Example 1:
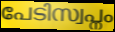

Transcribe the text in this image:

പേടിസ്വപ്നം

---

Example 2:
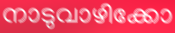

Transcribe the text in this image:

നാടുവാഴിക്കോ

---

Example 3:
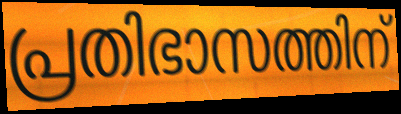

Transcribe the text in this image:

പ്രതിഭാസത്തിന്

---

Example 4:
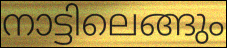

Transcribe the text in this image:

നാട്ടിലെങ്ങും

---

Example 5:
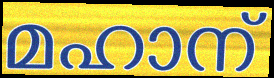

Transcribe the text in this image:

മഹാന്